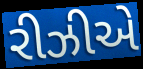
રીઝીએ